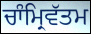
ਚਾੰਮ੍ਰਿਵੱਤਮ